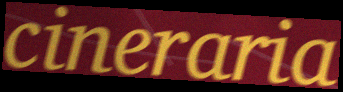
cineraria